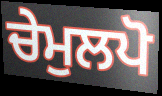
ਚੇਮੁਲਪੋ